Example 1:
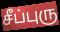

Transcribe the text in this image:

சீப்புரு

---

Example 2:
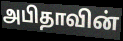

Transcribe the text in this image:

அபிதாவின்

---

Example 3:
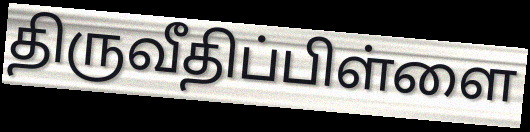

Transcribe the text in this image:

திருவீதிப்பிள்ளை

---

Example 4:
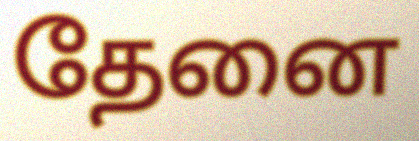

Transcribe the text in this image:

தேனை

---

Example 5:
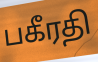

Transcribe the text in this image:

பகீரதி